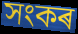
সংকৰ